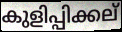
കുളിപ്പിക്കല്